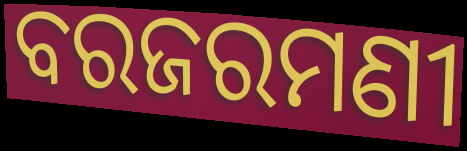
ବରଜରମଣୀ